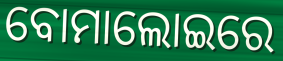
ବୋମାଲୋଇରେ